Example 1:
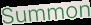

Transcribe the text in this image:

Summon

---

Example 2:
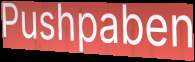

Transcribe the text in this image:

Pushpaben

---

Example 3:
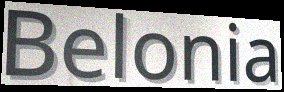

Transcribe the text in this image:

Belonia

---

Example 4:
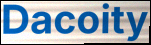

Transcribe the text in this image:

Dacoity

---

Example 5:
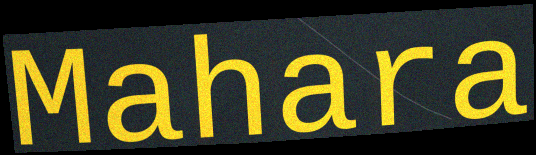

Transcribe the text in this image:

Mahara